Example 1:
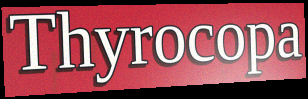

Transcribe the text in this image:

Thyrocopa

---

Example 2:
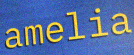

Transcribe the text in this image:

amelia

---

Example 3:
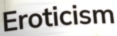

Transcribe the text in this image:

Eroticism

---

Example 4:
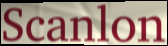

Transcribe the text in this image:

Scanlon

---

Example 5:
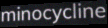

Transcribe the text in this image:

minocycline